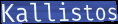
Kallistos